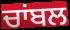
ਚਾਂਬਲ